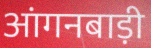
आंगनबाड़ी